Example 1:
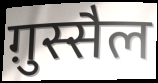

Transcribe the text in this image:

ग़ुस्सैल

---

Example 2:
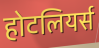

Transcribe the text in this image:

होटलियर्स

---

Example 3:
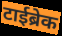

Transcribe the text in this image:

टाईब्रेक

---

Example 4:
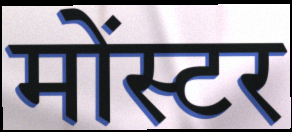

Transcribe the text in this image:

मोंस्टर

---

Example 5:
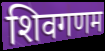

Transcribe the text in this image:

शिवगणम